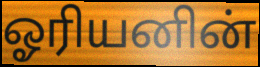
ஓரியனின்